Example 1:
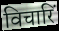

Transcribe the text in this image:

विचारिं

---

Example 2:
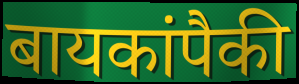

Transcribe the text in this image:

बायकांपैकी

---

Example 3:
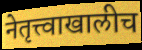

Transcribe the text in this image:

नेतृत्त्वाखालीच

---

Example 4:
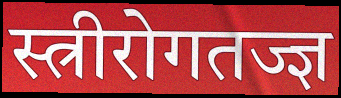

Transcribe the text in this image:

स्‍त्रीरोगतज्‍ज्ञ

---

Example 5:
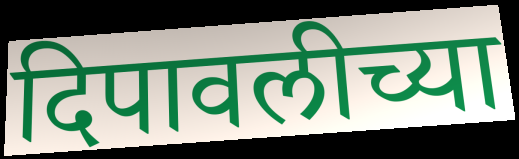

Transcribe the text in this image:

दिपावलीच्या